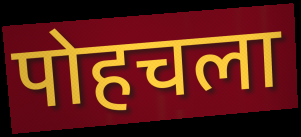
पोहचला